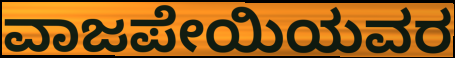
ವಾಜಪೇಯಿಯವರ